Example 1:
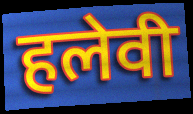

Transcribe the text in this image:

हलेवी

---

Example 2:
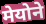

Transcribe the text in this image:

मेयोने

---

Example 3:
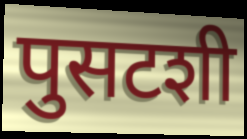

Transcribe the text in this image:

पुसटशी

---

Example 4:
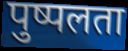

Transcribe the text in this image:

पुष्पलता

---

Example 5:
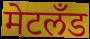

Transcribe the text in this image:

मेटलँड